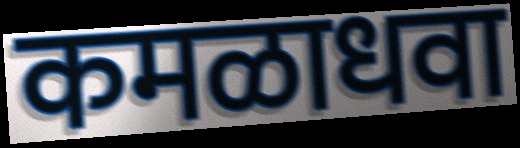
कमळाधवा